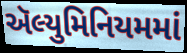
ઍલ્યુમિનિયમમાં